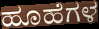
ಹೂಹೆಗಳ